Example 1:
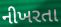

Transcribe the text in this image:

નીખરતા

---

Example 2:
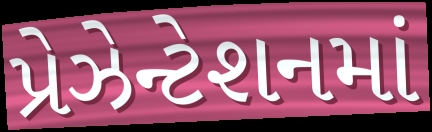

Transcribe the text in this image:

પ્રેઝેન્ટેશનમાં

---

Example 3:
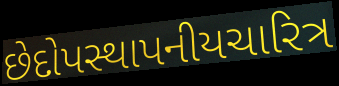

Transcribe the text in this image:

છેદોપસ્થાપનીયચારિત્ર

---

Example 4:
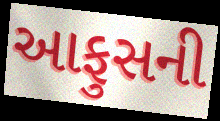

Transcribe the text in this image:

આફુસની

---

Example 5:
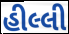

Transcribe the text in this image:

હીલ્લી